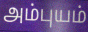
அம்புயம்